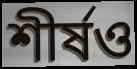
শীর্ষও